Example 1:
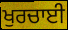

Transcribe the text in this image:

ਖੁਰਚਾਈ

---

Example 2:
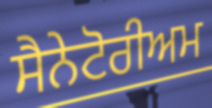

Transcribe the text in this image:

ਸੈਨੇਟੋਰੀਅਮ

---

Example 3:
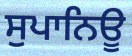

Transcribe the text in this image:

ਸੁਪਾਨਿਊ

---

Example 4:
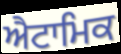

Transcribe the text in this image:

ਐਟਾਮਿਕ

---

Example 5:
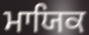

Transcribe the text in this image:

ਮਾਯਿਕ